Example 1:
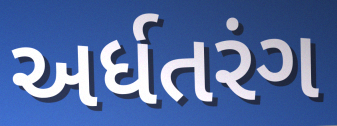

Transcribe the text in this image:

અર્ધતરંગ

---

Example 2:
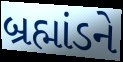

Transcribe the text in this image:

બ્રહ્માંડને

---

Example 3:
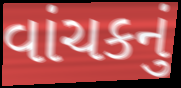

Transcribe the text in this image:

વાંચકનું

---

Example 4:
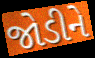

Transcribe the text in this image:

જોડીને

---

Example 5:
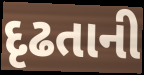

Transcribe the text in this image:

દૃઢતાની